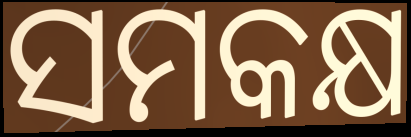
ସମକକ୍ଷ